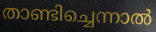
താണ്ടിച്ചെന്നാൽ